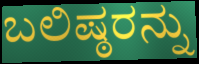
ಬಲಿಷ್ಠರನ್ನು